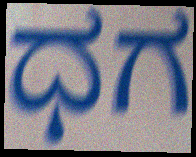
ಧಗ